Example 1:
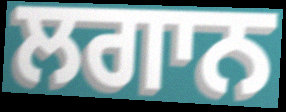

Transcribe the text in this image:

ਲਗਾਨ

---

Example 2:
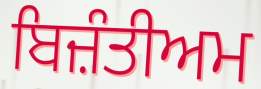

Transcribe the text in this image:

ਬਿਜ਼ੰਤੀਅਮ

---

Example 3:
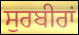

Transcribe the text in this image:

ਸੁਰਬੀਰਾਂ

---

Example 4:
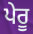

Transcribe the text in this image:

ਪੇਰੂ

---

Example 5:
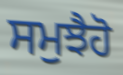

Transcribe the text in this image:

ਸਮੁਝੈਹੋ